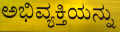
ಅಭಿವ್ಯಕ್ತಿಯನ್ನು